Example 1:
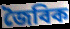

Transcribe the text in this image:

জৈবিক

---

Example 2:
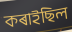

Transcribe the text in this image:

কৰাইছিল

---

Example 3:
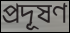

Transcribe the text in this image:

প্ৰদূষণ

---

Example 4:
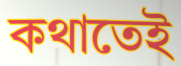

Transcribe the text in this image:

কথাতেই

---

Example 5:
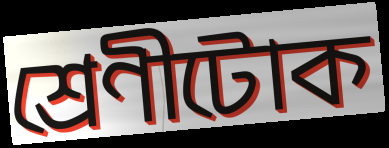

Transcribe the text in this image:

শ্ৰেণীটোক